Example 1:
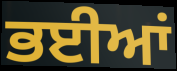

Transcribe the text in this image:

ਭਈਆਂ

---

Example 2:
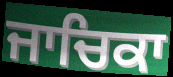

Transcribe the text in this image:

ਜਾਚਿਕਾ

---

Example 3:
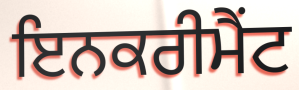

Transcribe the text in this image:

ਇਨਕਰੀਮੈਂਟ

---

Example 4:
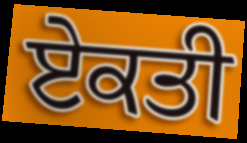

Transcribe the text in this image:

ਏਕਤੀ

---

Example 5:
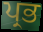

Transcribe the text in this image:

ਪ੍ਰਭ